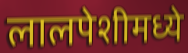
लालपेशीमध्ये